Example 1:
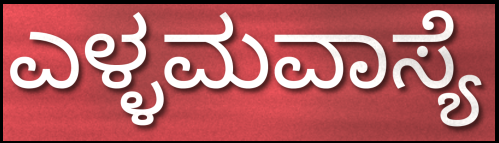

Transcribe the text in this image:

ಎಳ್ಳಮವಾಸ್ಯೆ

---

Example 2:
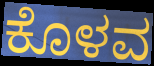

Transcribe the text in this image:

ಕೊಳವ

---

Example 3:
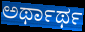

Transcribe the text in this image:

ಅರ್ಥಾರ್ಥ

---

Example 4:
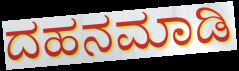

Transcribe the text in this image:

ದಹನಮಾಡಿ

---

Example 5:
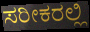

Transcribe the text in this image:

ಸರೀಕರಲ್ಲಿ